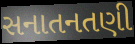
સનાતનતણી